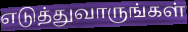
எடுத்துவாருங்கள்